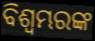
ବିଶ୍ୱମ୍ଭରଙ୍କ